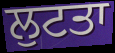
ਲੁਟਤਾ